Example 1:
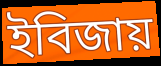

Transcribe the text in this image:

ইবিজায়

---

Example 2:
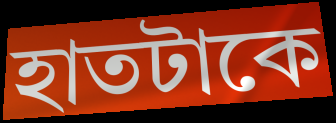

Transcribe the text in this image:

হাতটাকে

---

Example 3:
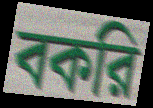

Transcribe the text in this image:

বকরি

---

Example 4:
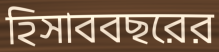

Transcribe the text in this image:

হিসাববছরের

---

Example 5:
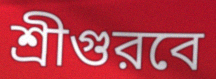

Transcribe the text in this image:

শ্রীগুরবে